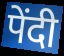
पेंदी